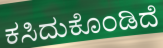
ಕಸಿದುಕೊಂಡಿದೆ